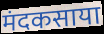
मंदकसाया